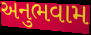
અનુભવામ